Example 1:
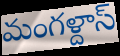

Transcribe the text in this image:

మంగళ్దాస్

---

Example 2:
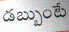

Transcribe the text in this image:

డబ్బుంటే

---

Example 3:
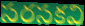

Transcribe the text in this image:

సరసకవి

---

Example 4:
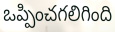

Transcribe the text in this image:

ఒప్పించగలిగింది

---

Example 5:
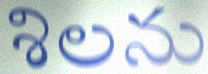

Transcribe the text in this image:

శిలను